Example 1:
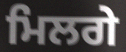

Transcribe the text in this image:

ਮਿਲਗੇ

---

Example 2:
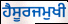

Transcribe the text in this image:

ਹੈਸੂਰਜਮੁਖੀ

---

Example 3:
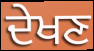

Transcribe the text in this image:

ਦੇਖਣ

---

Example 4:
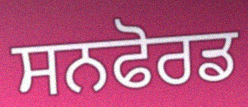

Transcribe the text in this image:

ਸਨਫੋਰਡ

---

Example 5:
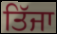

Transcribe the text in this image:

ਤਿੱਜਾ